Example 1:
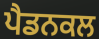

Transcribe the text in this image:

ਪੈਡਨਕਲ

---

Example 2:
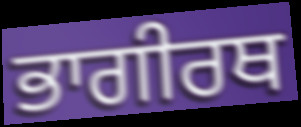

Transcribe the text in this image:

ਭਾਗੀਰਥ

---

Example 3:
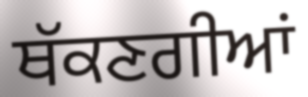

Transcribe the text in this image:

ਥੱਕਣਗੀਆਂ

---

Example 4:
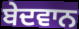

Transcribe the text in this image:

ਬੇਦਵਾਨ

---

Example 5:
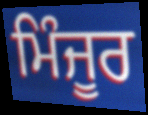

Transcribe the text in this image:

ਮਿੰਜੂਰ